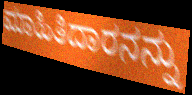
ಮಾಹಿತಿದಾರನನ್ನು